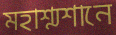
মহাশ্মশানে